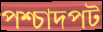
পশ্চাদপট